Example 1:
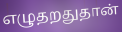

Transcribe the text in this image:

எழுதறதுதான்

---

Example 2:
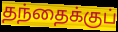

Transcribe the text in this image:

தந்தைக்குப்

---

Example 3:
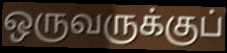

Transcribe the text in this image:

ஒருவருக்குப்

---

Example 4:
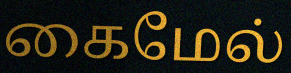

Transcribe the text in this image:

கைமேல்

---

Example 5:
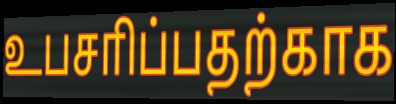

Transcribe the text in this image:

உபசரிப்பதற்காக